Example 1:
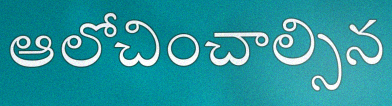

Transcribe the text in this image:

ఆలోచించాల్సిన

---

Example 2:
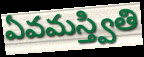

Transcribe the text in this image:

ఏవమస్త్వితి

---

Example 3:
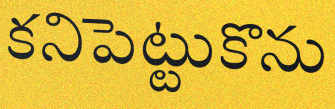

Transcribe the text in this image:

కనిపెట్టుకొను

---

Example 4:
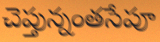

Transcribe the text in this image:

చెప్తున్నంతసేపూ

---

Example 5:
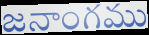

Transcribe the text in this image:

జనాంగము